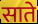
साते